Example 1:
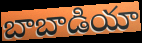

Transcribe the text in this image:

బాబాడియా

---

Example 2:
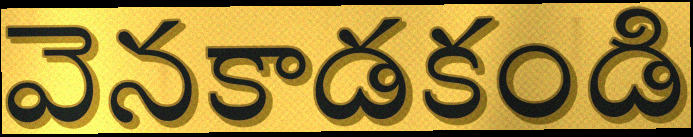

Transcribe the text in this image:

వెనకాడకండి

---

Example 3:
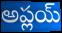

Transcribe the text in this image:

అప్లయ్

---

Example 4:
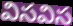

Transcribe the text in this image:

విసవిస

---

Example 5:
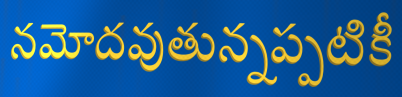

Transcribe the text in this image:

నమోదవుతున్నప్పటికీ